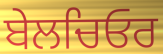
ਬੇਲਚਿਓਰ